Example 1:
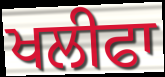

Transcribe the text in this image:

ਖਲੀਫਾ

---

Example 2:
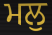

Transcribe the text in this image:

ਮਲੁ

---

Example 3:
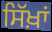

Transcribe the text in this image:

ਸਿੱਖ਼ਾਂ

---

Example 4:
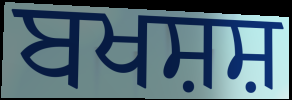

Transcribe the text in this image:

ਬਖਸ਼ਸ਼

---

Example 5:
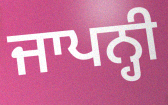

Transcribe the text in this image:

ਜਾਪਨ੍ਹੀ